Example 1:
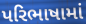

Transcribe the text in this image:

પરિભાષામાં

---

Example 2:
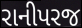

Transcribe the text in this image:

રાનીપરજ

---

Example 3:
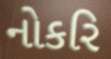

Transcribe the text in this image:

નોકરિ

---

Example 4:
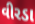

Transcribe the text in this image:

વીરડા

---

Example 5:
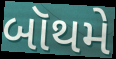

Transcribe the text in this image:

બૉથમે